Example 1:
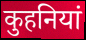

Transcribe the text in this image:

कुहनियां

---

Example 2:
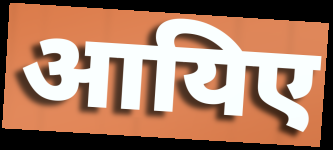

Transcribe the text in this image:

आयिए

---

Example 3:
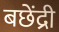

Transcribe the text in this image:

बछेंद्री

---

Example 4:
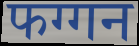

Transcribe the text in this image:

फग्‍गन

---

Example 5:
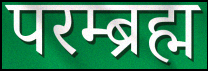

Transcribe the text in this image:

परम्ब्रह्म